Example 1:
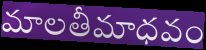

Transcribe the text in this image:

మాలతీమాధవం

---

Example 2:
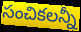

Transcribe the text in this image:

సంచికలన్నీ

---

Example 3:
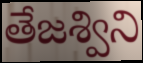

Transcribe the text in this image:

తేజశ్విని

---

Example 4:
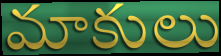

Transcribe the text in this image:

మాకులు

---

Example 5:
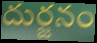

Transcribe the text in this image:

దుర్జనం